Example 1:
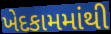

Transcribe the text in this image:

ખેદકામમાંથી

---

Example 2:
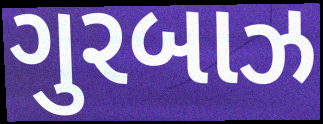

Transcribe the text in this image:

ગુરબાઝ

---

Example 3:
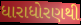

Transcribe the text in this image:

ધારાધોરણથી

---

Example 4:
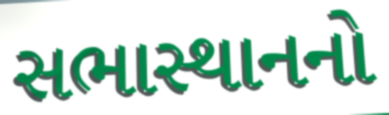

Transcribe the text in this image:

સભાસ્થાનનો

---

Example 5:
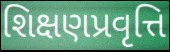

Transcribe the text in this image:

શિક્ષણપ્રવૃત્તિ